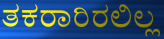
ತಕರಾರಿರಲಿಲ್ಲ